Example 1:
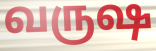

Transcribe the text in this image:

வருஷ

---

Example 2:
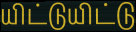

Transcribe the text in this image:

யிட்டுயிட்டு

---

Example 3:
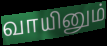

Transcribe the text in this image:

வாயினும்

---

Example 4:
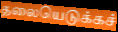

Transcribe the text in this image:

தலையெடுக்கச்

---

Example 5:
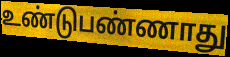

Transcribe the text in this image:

உண்டுபண்ணாது